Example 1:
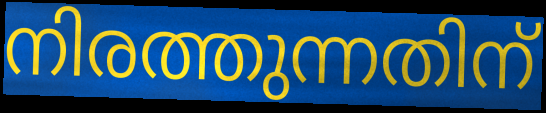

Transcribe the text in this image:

നിരത്തുന്നതിന്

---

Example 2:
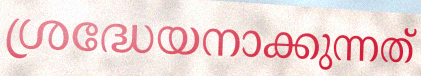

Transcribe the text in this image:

ശ്രദ്ധേയനാക്കുന്നത്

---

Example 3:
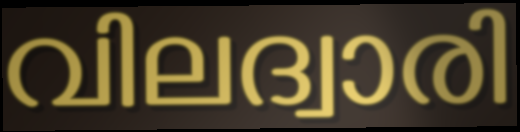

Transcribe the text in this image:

വിലദ്വാരി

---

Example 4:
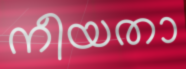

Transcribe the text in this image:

നീയതാ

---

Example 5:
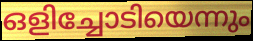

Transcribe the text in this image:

ഒളിച്ചോടിയെന്നും